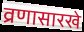
व्रणासारखे